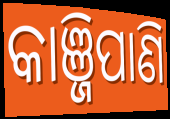
କାଞ୍ଜିପାଣି